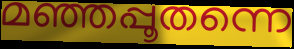
മഞ്ഞപ്പൂതന്നെ